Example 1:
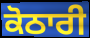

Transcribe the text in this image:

ਕੋਠਾਰੀ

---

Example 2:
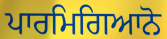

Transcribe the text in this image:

ਪਾਰਮਿਗਿਆਨੋ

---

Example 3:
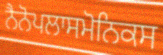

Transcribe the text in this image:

ਨੈਨੋਪਲਾਸਮੋਨਿਕਸ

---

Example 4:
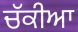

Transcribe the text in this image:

ਚੱਕੀਆ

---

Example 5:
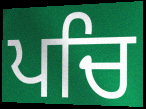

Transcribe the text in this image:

ਪਚਿ